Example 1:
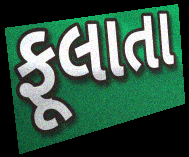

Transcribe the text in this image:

ફૂલાતા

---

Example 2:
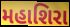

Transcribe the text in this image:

મહાશિરા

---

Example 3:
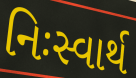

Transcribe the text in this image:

નિઃસ્વાર્થ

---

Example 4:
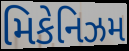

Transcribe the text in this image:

મિકેનિઝમ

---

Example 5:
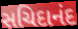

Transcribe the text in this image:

સચિદાનંદ